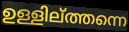
ഉള്ളില്ത്തന്നെ